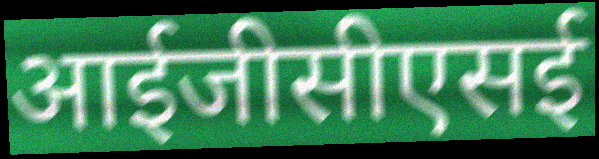
आईजीसीएसई